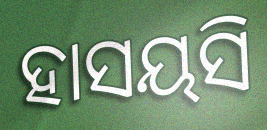
ହାସୟସି